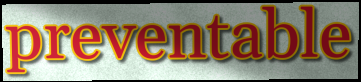
preventable